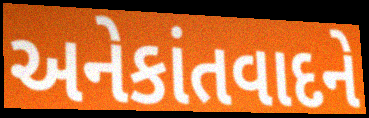
અનેકાંતવાદને